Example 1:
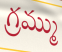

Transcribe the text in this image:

గ్రమ్ము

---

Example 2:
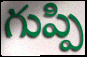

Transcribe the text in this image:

గుప్పి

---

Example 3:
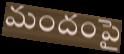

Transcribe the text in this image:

మందంపై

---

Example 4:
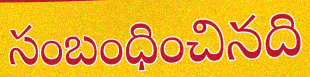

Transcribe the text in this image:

సంబంధించినది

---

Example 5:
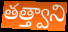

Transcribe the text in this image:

తత్త్వాని